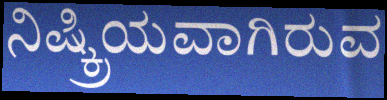
ನಿಷ್ಕ್ರಿಯವಾಗಿರುವ